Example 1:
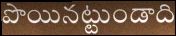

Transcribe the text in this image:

పొయినట్టుండాది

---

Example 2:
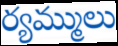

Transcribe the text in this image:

ర్యమ్ములు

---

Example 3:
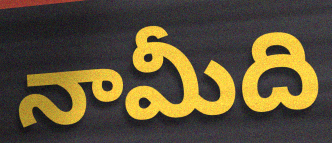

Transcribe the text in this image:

నామీది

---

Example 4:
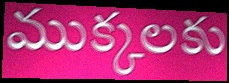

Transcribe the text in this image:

ముక్కలకు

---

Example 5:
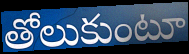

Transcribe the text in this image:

తోలుకుంటూ